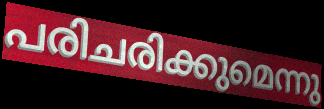
പരിചരിക്കുമെന്നു